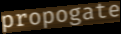
propogate